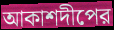
আকাশদীপের